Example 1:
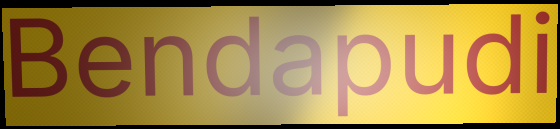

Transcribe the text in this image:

Bendapudi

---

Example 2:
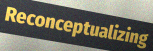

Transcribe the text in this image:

Reconceptualizing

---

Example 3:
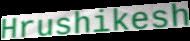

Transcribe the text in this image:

Hrushikesh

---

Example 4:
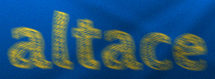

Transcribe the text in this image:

altace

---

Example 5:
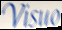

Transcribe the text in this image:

Visuo